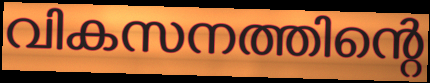
വികസനത്തിന്റെ